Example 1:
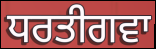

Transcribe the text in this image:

ਧਰਤੀਗਵਾ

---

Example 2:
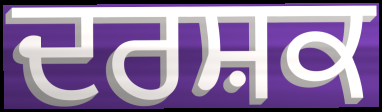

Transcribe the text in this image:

ਦਰਸ਼ਕ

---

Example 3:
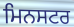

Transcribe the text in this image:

ਮਿਨਸਟਰ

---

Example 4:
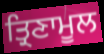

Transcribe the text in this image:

ਤ੍ਰਿਣਾਮੂਲ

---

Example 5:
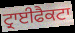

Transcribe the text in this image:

ਟ੍ਰਾਈਫੈਕਟਾ